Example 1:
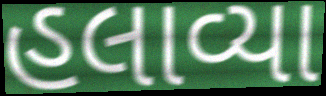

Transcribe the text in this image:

હલાવ્યા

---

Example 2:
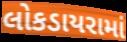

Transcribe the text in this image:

લોકડાયરામાં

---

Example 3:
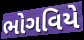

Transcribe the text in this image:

ભોગવિયે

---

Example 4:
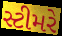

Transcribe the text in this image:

સ્ટીમરે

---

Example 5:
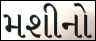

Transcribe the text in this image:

મશીનો